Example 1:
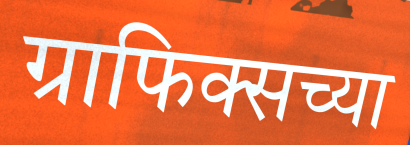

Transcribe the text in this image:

ग्राफिक्सच्या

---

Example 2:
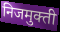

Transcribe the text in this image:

निजमुक्ती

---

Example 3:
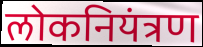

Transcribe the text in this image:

लोकनियंत्रण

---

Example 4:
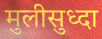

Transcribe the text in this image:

मुलीसुध्दा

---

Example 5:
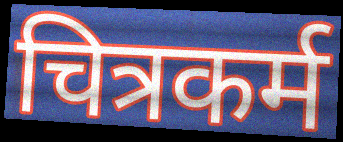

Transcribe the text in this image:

चित्रकर्म